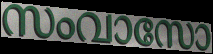
സംവാസോ